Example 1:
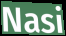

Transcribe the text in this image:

Nasi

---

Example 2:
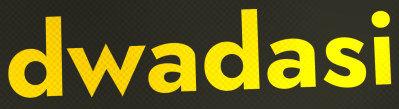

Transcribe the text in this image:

dwadasi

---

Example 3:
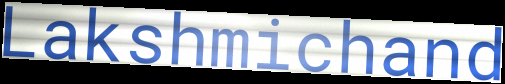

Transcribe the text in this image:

Lakshmichand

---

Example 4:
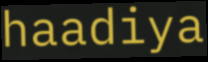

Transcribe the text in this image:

haadiya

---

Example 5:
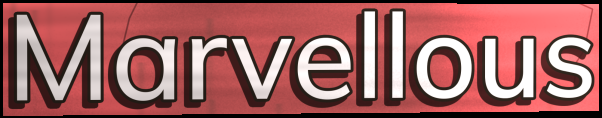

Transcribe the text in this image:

Marvellous